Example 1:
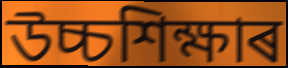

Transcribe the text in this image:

উচ্চশিক্ষাৰ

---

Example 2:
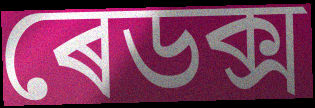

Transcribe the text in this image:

ৰেডক্স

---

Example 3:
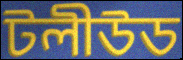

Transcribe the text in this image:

টলীউড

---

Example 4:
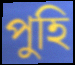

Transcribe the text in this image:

পুহি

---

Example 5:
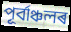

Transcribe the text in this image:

পূৰ্বাঞ্চলৰ